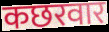
कछरवार